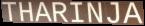
THARINJA